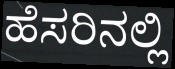
ಹೆಸರಿನಲ್ಲಿ